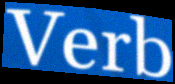
Verb